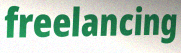
freelancing